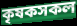
কৃষকসকল